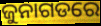
ଜୁନାଗଡରେ